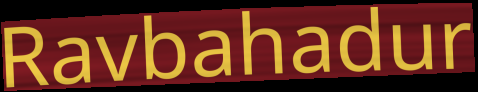
Ravbahadur